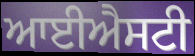
ਆਈਐਸਟੀ